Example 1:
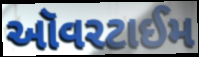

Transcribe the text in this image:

ઑવરટાઈમ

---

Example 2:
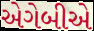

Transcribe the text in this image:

એગેબીએ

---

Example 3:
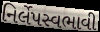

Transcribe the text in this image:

નિર્લેપસ્વભાવી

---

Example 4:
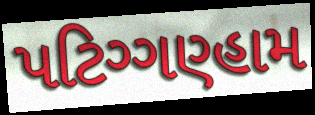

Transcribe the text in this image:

પટિગ્ગણ્હામ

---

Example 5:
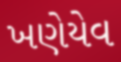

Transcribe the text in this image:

ખણેયેવ